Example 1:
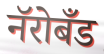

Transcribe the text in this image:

नॅरोबँड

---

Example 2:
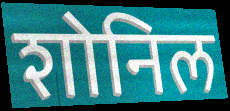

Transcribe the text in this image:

शोनिल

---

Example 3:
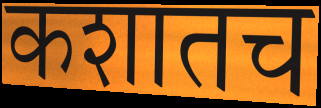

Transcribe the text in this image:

कशातच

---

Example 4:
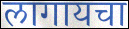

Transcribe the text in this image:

लागायचा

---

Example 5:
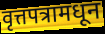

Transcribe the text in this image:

वृत्तपत्रामधून